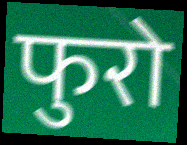
फुरो